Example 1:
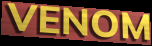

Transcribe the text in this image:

VENOM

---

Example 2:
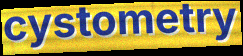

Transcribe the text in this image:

cystometry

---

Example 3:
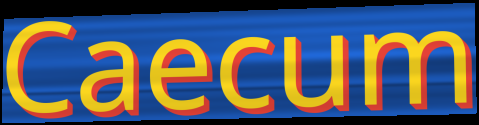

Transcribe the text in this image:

Caecum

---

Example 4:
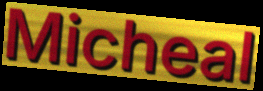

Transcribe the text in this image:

Micheal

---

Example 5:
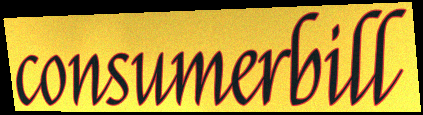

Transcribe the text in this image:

consumerbill